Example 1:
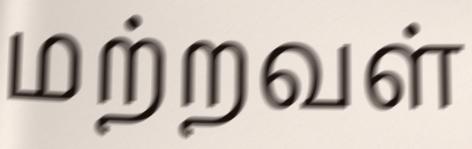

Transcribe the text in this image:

மற்றவள்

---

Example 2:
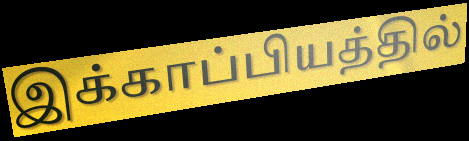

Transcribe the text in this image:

இக்காப்பியத்தில்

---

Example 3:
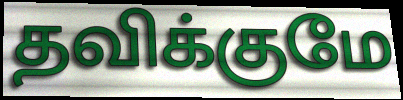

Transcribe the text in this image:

தவிக்குமே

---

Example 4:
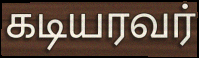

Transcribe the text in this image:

கடியரவர்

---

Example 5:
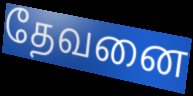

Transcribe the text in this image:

தேவனை